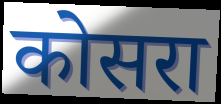
कोसरा